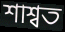
শাশ্বত